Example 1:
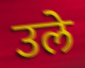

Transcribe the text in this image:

उले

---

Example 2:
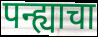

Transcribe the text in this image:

पन्ह्याचा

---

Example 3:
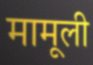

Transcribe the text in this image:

मामूली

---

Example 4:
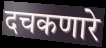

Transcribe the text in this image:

दचकणारे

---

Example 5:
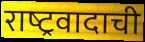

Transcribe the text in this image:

राष्ट्रवादाची